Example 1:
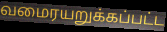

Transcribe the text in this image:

வமைரயறுக்கப்பட்ட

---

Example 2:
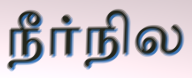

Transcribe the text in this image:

நீர்நில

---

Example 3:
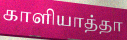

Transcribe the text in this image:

காளியாத்தா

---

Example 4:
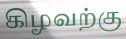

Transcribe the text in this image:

கிழவற்கு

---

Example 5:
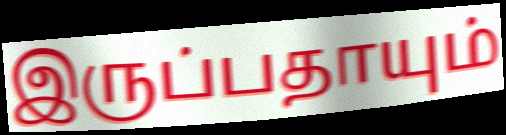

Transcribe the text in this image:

இருப்பதாயும்